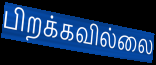
பிறக்கவில்லை